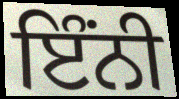
ਇੰਂਨੀ